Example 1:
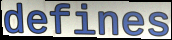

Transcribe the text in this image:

defines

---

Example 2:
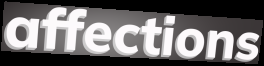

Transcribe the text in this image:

affections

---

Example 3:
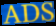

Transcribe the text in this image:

ADS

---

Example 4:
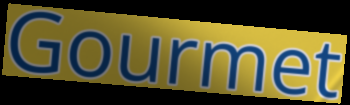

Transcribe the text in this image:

Gourmet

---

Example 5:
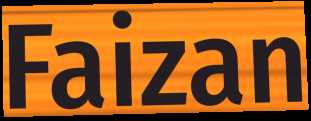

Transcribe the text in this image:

Faizan